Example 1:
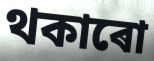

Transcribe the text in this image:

থকাৰো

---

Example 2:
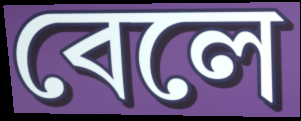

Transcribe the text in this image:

বেলে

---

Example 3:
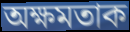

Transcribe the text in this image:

অক্ষমতাক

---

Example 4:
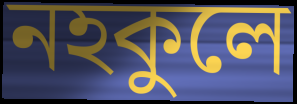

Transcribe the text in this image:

নহকুলে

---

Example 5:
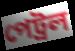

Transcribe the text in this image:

পেট্ৰল